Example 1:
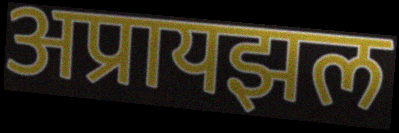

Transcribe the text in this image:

अप्रायझल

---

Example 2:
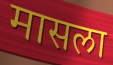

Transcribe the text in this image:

मासला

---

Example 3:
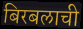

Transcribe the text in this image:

बिरबलाची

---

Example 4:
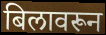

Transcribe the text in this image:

बिलावरून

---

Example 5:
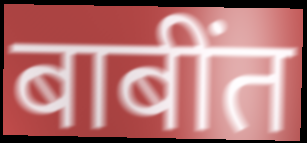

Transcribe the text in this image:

बाबींत